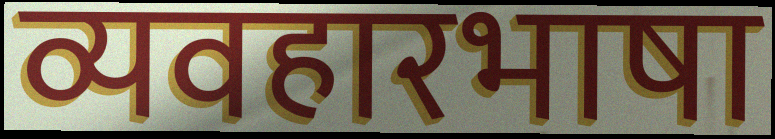
व्यवहारभाषा